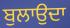
ਬੁਲਾਉਦਾ